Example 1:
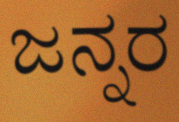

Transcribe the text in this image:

ಜನ್ನರ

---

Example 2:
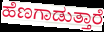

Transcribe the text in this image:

ಹೆಣಗಾಡುತ್ತಾರೆ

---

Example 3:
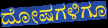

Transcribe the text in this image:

ದೋಷಗಳಿಗೂ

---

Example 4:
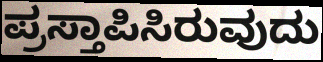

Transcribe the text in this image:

ಪ್ರಸ್ತಾಪಿಸಿರುವುದು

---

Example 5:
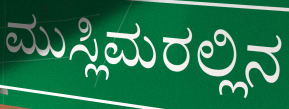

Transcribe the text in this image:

ಮುಸ್ಲಿಮರಲ್ಲಿನ